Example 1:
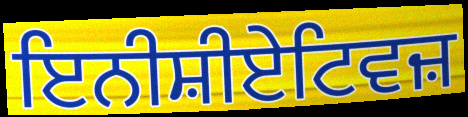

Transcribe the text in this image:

ਇਨੀਸ਼ੀਏਟਿਵਜ਼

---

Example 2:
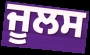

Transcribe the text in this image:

ਜੂਲਸ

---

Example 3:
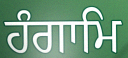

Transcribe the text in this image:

ਹੰਗਾਮਿ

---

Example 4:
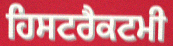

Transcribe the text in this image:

ਹਿਸਟਰੈਕਟਮੀ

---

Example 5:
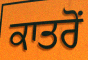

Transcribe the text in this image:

ਕਾਤਰੋੰ